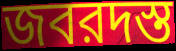
জবরদস্ত